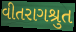
વીતરાગશ્રુત